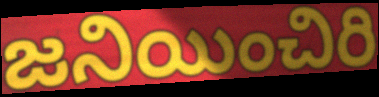
జనియించిరి